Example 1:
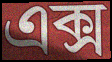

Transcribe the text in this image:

এক্স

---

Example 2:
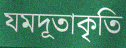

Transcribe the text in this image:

যমদূতাকৃতি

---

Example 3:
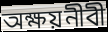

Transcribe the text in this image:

অক্ষয়নীবী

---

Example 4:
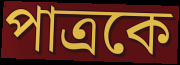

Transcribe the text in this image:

পাত্রকে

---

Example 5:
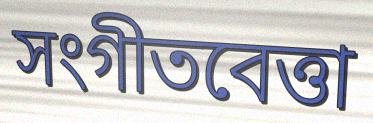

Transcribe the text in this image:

সংগীতবেত্তা